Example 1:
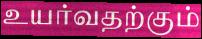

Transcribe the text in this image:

உயர்வதற்கும்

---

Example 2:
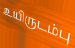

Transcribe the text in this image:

உயிருடம்பு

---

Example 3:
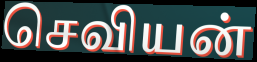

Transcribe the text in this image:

செவியன்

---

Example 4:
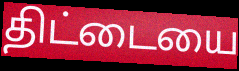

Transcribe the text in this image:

திட்டையை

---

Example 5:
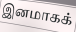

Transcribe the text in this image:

இனமாகக்